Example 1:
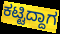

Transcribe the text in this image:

ಕಟ್ಟಿದ್ದಾಗ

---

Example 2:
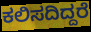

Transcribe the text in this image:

ಕಲಿಸದಿದ್ದರೆ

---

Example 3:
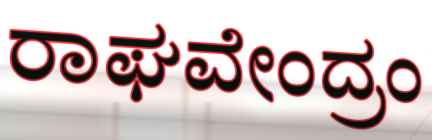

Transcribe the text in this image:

ರಾಘವೇಂದ್ರಂ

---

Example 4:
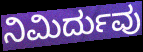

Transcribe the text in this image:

ನಿಮಿರ್ದುವು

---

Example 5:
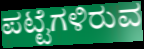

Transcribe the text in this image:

ಪಟ್ಟೆಗಳಿರುವ